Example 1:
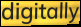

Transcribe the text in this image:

digitally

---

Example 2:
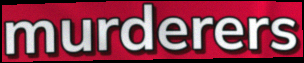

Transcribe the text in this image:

murderers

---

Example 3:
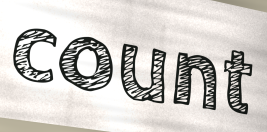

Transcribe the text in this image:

count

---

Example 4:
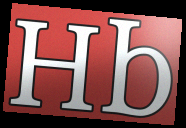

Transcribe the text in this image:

Hb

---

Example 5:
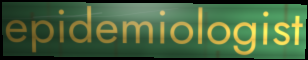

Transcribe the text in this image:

epidemiologist